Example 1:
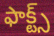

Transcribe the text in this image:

ఫాక్ట్స్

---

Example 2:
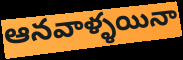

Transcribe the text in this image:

ఆనవాళ్ళయినా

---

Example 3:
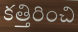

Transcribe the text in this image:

కత్తిరించి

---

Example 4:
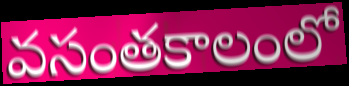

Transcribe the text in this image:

వసంతకాలంలో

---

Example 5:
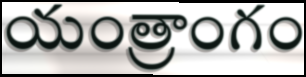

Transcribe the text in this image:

యంత్రాంగం